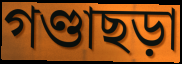
গণ্ডাছড়া